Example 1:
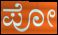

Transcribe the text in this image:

ಪೋ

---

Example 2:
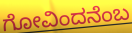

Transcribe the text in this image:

ಗೋವಿಂದನೆಂಬ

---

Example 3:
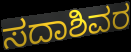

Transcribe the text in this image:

ಸದಾಶಿವರ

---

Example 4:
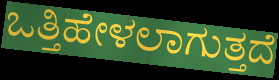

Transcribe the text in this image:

ಒತ್ತಿಹೇಳಲಾಗುತ್ತದೆ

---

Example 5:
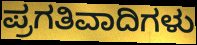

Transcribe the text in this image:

ಪ್ರಗತಿವಾದಿಗಳು